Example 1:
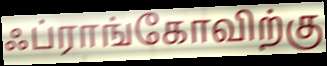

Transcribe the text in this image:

ஃப்ராங்கோவிற்கு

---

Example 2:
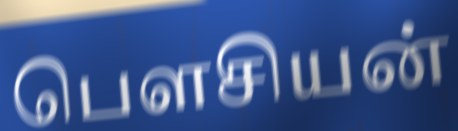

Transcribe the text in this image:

பௌசியன்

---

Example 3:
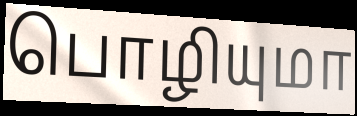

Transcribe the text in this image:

பொழியுமா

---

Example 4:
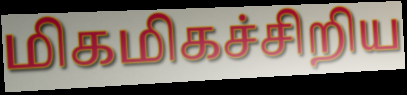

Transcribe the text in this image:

மிகமிகச்சிறிய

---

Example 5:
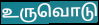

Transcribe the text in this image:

உருவொடு